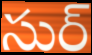
సుర్